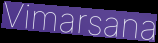
Vimarsana